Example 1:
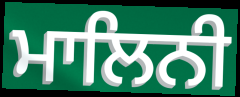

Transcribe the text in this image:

ਮਾਲਿਨੀ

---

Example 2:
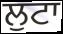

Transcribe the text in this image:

ਲੁਟਾ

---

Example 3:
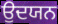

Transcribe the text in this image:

ਉਦਯਨ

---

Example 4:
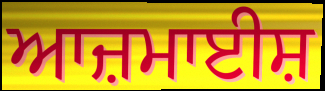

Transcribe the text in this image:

ਆਜ਼ਮਾਈਸ਼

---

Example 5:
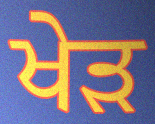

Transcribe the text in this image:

ਖੇੜ